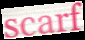
scarf